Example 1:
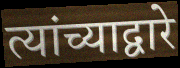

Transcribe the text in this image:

त्यांच्याद्वारे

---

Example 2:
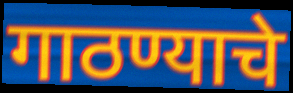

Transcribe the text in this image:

गाठण्याचे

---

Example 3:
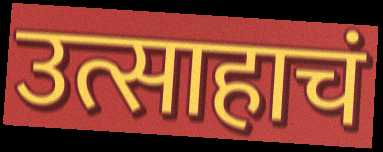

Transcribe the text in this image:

उत्साहाचं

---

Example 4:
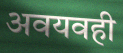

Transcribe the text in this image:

अवयवही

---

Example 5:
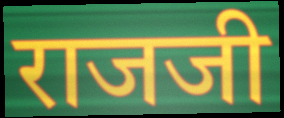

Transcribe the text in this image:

राजजी